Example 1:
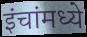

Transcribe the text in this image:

इंचांमध्ये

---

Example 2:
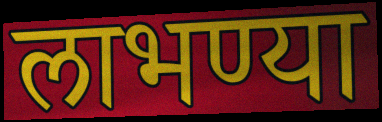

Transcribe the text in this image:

लाभण्या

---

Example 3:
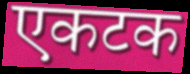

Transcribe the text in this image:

एकटक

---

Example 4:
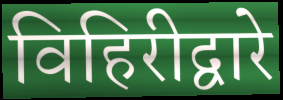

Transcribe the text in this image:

विहिरीद्वारे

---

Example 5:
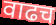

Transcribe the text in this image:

वाढच